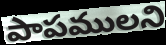
పాపములని